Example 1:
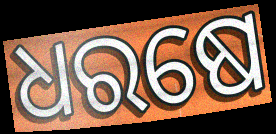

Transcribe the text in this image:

ଧରଷେ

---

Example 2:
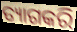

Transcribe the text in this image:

ତ୍ଯାଗକରି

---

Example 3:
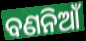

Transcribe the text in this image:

ବଣନିଆଁ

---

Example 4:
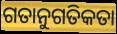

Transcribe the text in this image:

ଗତାନୁଗତିକତା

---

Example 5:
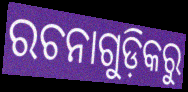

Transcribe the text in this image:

ରଚନାଗୁଡ଼ିକରୁ